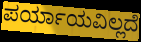
ಪರ್ಯಾಯವಿಲ್ಲದೆ